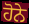
ਹੋਨੇ